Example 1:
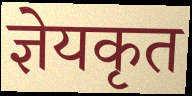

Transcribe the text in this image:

ज्ञेयकृत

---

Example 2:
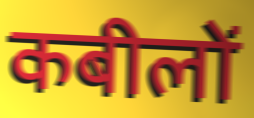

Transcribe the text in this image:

कबीलों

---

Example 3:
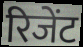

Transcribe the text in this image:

रिजेंट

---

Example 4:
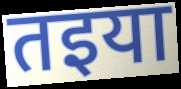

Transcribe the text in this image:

तइया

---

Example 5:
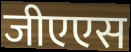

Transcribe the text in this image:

जीएएस